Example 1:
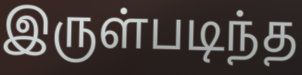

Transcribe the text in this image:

இருள்படிந்த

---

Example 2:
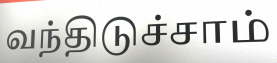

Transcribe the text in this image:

வந்திடுச்சாம்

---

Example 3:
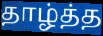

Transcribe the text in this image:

தாழ்த்த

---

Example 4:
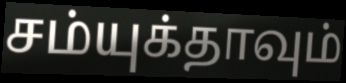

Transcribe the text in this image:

சம்யுக்தாவும்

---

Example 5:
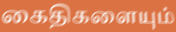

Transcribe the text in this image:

கைதிகளையும்